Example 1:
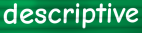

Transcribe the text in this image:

descriptive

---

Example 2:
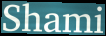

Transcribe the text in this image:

Shami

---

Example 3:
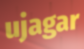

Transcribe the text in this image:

ujagar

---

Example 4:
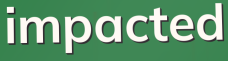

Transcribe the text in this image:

impacted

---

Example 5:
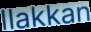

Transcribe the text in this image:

Ilakkan